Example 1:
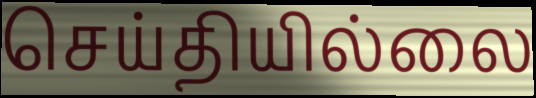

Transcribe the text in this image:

செய்தியில்லை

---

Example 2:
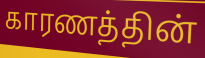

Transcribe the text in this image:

காரணத்தின்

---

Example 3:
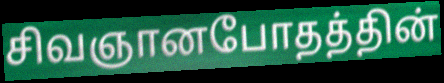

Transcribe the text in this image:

சிவஞானபோதத்தின்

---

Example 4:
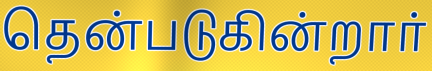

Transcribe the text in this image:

தென்படுகின்றார்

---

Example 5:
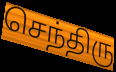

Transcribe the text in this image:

செந்திரு